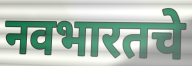
नवभारतचे